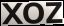
XOZ